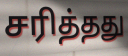
சரித்தது